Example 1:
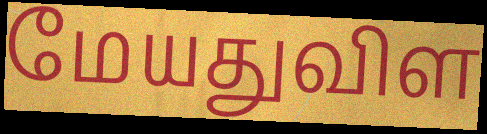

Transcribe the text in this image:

மேயதுவிள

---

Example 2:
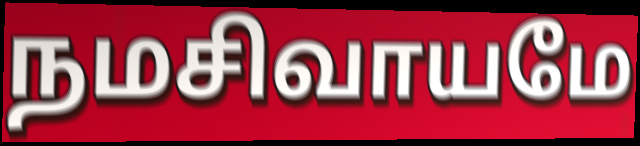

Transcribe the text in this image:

நமசிவாயமே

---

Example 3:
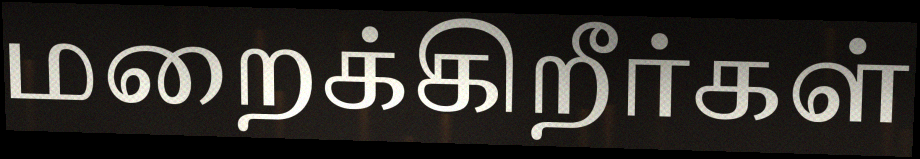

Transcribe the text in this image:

மறைக்கிறீர்கள்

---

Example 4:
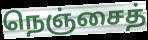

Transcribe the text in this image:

நெஞ்சைத்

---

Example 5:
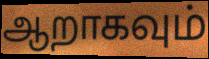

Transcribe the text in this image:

ஆறாகவும்